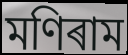
মণিৰাম